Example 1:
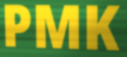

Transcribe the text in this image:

PMK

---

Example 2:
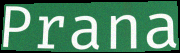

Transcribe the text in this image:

Prana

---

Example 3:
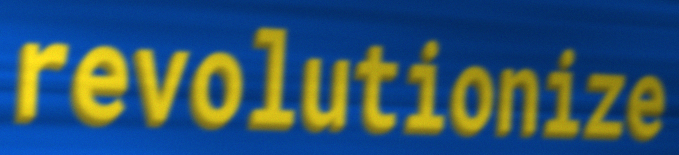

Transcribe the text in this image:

revolutionize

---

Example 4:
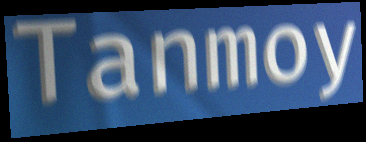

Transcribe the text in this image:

Tanmoy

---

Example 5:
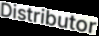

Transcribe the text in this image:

Distributor